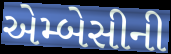
એમ્બેસીની